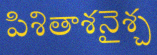
పిశితాశనైశ్చ